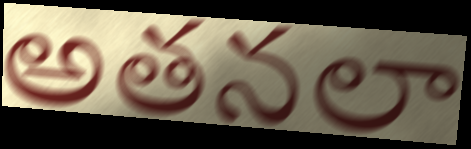
అతనలా